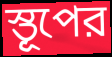
স্তূপের